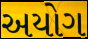
અયોગ